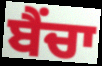
ਬੈਂਚਾ